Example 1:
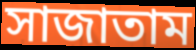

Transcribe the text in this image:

সাজাতাম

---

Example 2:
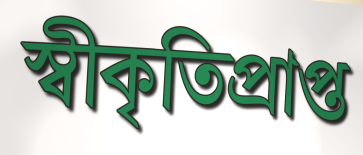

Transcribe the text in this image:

স্বীকৃতিপ্রাপ্ত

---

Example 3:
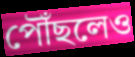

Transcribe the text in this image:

পৌঁছলেও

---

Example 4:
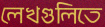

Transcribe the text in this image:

লেখগুলিতে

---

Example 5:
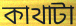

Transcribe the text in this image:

কাথাটা